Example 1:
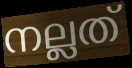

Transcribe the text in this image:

നല്ലത്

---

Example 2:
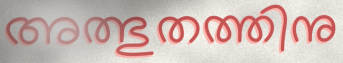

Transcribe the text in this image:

അത്ഭുതത്തിനു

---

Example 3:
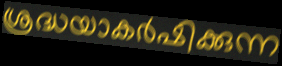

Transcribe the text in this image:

ശ്രദ്ധയാകർഷിക്കുന്ന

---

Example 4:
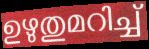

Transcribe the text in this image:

ഉഴുതുമറിച്ച്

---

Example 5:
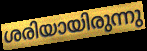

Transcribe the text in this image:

ശരിയായിരുന്നു